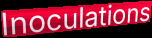
Inoculations